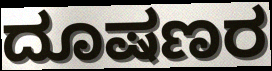
ದೂಷಣರ